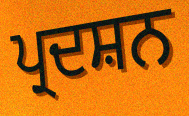
ਪ੍ਰਦਸ਼ਨ